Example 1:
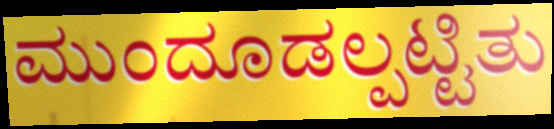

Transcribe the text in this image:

ಮುಂದೂಡಲ್ಪಟ್ಟಿತು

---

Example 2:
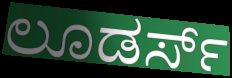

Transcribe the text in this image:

ಲೂಡರ್ಸ್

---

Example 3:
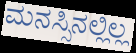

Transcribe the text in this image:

ಮನಸ್ಸಿನಲ್ಲಿಲ್ಲ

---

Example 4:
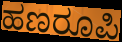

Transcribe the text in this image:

ಹಣರೂಪಿ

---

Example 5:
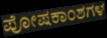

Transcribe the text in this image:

ಪೋಷಕಾಂಶಗಳ